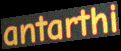
antarthi